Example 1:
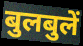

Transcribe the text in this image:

बुलबुलें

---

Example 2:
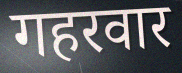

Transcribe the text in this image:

गहरवार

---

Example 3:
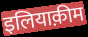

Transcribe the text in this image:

इलियाक़ीम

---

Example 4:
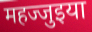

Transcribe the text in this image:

महज्जुइया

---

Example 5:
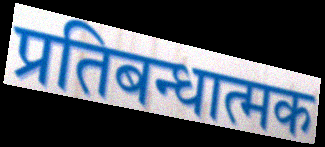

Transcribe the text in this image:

प्रतिबन्धात्मक